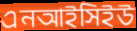
এনআইসিইউ